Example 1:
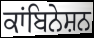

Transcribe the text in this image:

ਕਾਂਬਿਨੇਸ਼ਨ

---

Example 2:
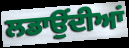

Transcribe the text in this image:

ਲਡਾਉਂਦੀਆਂ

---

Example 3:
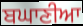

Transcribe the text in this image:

ਬਘਾਣੀਆ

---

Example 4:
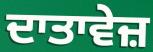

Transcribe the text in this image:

ਦਾਤਾਵੇਜ਼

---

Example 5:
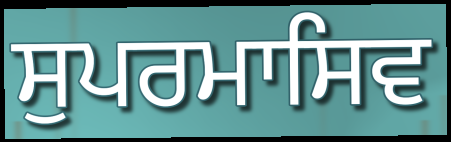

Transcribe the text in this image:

ਸੁਪਰਮਾਸਿਵ